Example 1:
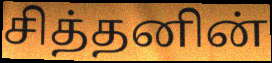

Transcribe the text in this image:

சித்தனின்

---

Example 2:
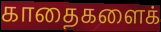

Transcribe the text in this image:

காதைகளைக்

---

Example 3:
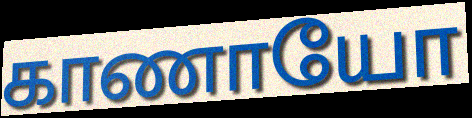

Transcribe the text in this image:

காணாயோ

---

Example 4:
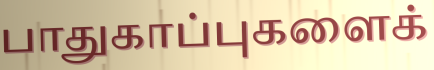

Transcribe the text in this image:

பாதுகாப்புகளைக்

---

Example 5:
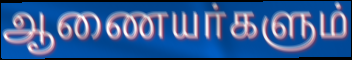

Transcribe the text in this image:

ஆணையர்களும்